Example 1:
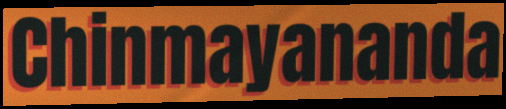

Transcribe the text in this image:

Chinmayananda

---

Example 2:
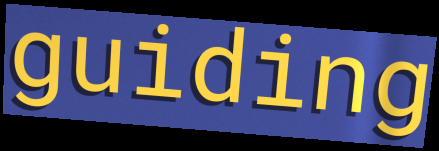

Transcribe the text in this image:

guiding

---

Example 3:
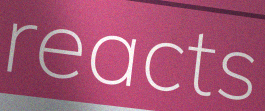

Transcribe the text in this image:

reacts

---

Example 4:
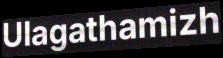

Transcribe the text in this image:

Ulagathamizh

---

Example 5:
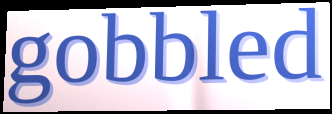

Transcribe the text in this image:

gobbled